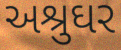
અશ્રુઘર